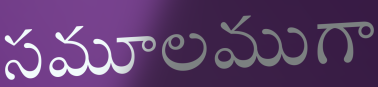
సమూలముగా